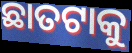
ଛାତଟାକୁ